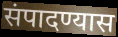
संपादण्यास